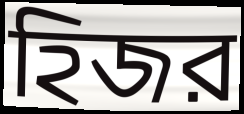
হিজর